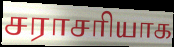
சராசரியாக